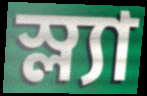
স্ল্যা